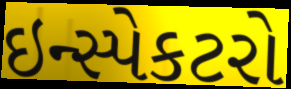
ઇન્સ્પેકટરો